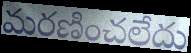
మరణించలేదు